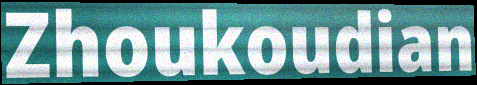
Zhoukoudian